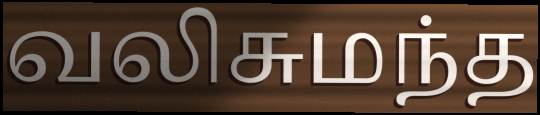
வலிசுமந்த